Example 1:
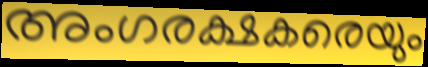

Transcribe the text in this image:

അംഗരക്ഷകരെയും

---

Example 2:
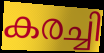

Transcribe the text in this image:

കരച്ചി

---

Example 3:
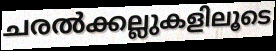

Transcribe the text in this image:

ചരൽക്കല്ലുകളിലൂടെ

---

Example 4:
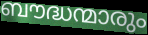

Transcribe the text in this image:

ബൗദ്ധന്മാരും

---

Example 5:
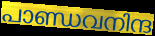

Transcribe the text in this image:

പാണ്ഡവനിന്ദ